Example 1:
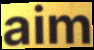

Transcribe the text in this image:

aim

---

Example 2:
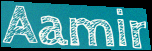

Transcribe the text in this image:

Aamir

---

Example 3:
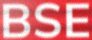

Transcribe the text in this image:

BSE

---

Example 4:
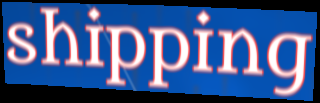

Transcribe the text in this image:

shipping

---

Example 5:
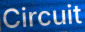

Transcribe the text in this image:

Circuit